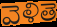
వెళితె